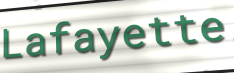
Lafayette